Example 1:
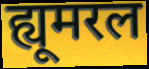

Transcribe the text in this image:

ह्यूमरल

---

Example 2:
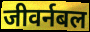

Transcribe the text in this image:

जीवर्नबल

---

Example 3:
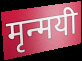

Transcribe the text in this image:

मृन्मयी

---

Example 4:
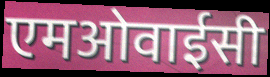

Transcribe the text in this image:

एमओवाईसी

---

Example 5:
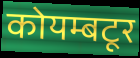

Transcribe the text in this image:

कोयम्‍बटूर